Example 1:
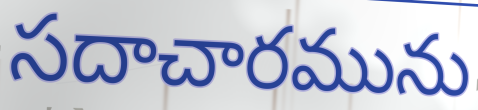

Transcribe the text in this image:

సదాచారమును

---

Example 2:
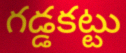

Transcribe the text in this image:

గడ్డకట్టు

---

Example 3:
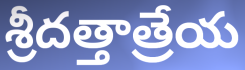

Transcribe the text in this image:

శ్రీదత్తాత్రేయ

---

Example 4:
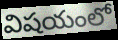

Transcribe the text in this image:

విషయంలో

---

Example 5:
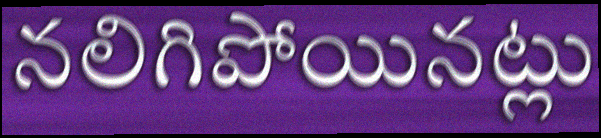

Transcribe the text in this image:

నలిగిపోయినట్లు